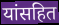
यांसहित